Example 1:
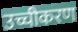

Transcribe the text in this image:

उच्चीकरण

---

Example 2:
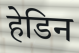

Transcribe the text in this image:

हेडिन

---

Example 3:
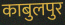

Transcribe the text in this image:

काबुलपुर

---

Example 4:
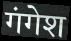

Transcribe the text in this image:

गंगेश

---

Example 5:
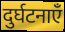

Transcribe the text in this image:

दुर्घटनाएँ